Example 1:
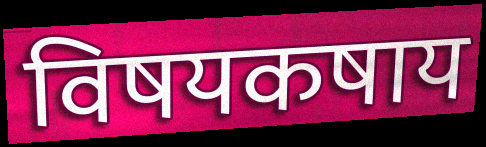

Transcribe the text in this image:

विषयकषाय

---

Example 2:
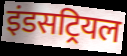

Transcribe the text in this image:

इंडसट्रियल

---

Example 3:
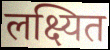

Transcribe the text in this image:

लक्ष्यित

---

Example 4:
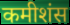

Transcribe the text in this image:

कमीशंस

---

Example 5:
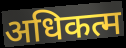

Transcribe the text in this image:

अधिकत्म